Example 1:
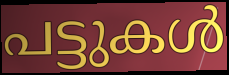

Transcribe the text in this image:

പട്ടുകൾ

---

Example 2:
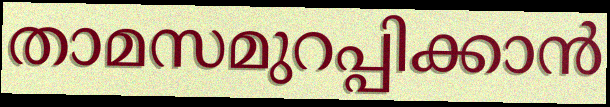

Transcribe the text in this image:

താമസമുറപ്പിക്കാൻ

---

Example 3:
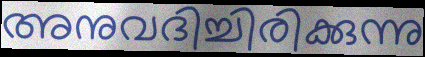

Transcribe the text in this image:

അനുവദിച്ചിരിക്കുന്നു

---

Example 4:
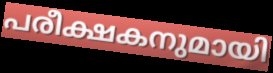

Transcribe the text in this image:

പരീക്ഷകനുമായി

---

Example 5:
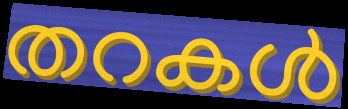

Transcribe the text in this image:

തറകൾ